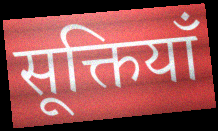
सूक्तियाँ